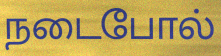
நடைபோல்